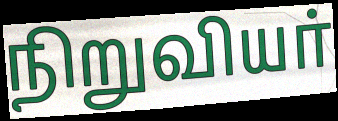
நிறுவியர்